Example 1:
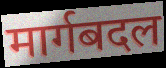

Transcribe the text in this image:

मार्गबदल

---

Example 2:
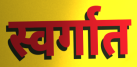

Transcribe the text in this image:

स्वर्गात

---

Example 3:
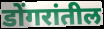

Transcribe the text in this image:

डोंगरांतील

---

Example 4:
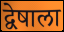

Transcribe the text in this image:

द्वेषाला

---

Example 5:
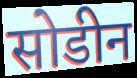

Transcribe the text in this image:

सोडीन